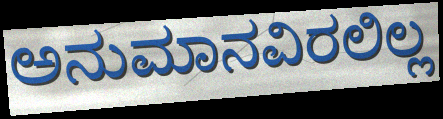
ಅನುಮಾನವಿರಲಿಲ್ಲ